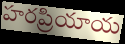
హరప్రియాయ